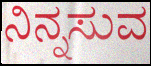
ನಿನ್ನಸುವ